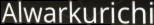
Alwarkurichi